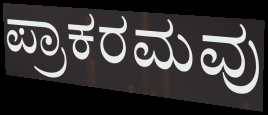
ಪ್ರಾಕರಮವು